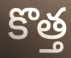
కొత్త